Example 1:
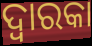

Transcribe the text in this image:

ଦ୍ୱାରକା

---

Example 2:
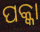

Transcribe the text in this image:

ପକ୍କା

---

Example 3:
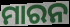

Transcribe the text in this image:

ମାରନ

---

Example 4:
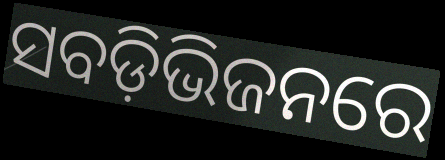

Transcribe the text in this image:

ସବଡ଼ିଭିଜନରେ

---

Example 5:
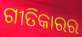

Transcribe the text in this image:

ଗୀତିକାରର